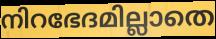
നിറഭേദമില്ലാതെ